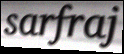
sarfraj